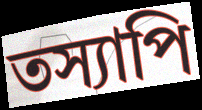
তস্যাপি